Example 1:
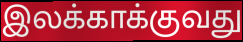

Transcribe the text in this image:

இலக்காக்குவது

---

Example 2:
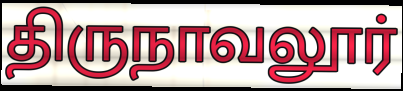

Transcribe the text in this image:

திருநாவலூர்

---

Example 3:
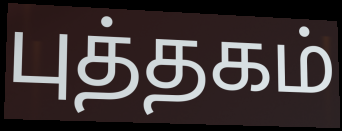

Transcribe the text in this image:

புத்தகம்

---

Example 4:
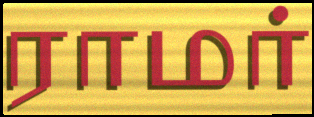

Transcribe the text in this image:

ராமர்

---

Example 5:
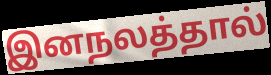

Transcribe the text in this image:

இனநலத்தால்